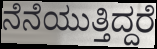
ನೆನೆಯುತ್ತಿದ್ದರೆ